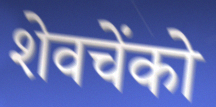
शेवचेंको